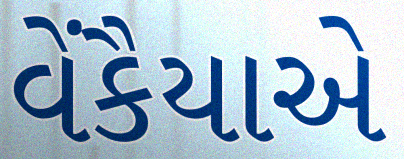
વેંકૈયાએ